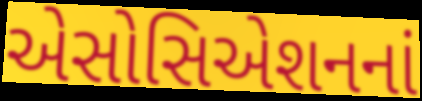
એસોસિએશનનાં